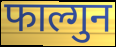
फाल्गुन